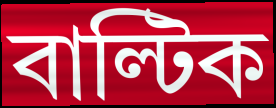
বাল্টিক